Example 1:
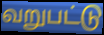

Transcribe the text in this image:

வறுபட்டு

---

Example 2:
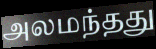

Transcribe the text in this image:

அலமந்தது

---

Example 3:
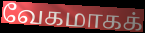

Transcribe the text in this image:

வேகமாகக்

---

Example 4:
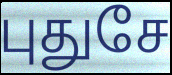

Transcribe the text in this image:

புதுசே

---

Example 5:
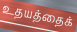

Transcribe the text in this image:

உதயத்தைக்